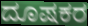
ದೂಷಕರ